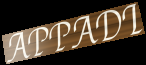
APPADI